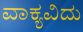
ವಾಕ್ಯವಿದು